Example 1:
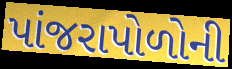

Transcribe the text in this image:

પાંજરાપોળોની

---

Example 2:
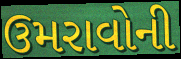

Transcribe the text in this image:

ઉમરાવોની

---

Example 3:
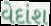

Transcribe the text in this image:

વેદાંશ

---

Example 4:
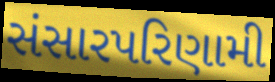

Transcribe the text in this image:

સંસારપરિણામી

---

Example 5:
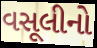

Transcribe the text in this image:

વસૂલીનો